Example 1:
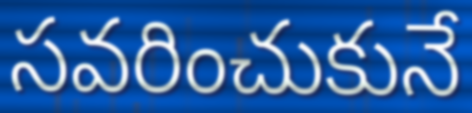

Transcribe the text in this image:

సవరించుకునే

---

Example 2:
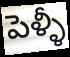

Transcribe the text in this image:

పెళ్ళీ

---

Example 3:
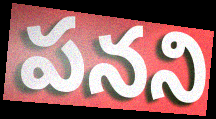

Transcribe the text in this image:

పనని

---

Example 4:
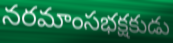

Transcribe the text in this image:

నరమాంసభక్షకుడు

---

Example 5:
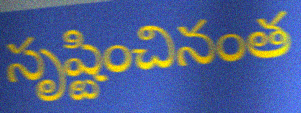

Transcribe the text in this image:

సృష్టించినంత